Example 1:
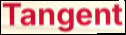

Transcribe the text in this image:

Tangent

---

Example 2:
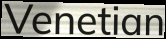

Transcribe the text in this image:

Venetian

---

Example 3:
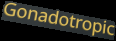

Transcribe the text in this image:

Gonadotropic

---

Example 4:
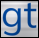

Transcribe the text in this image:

gt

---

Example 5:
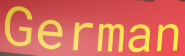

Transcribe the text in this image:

German